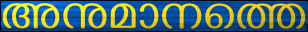
അനുമാനത്തെ